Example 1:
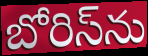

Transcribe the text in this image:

బోరిస్‌ను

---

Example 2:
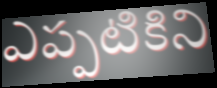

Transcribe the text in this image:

ఎప్పటికిని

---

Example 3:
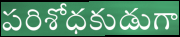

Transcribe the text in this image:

పరిశోధకుడుగా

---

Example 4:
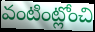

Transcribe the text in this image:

వంటింట్లోంచి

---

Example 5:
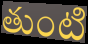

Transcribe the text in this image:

తుంటి